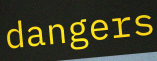
dangers